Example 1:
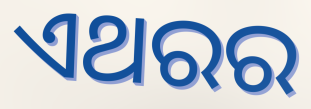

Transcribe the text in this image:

ଏଥରର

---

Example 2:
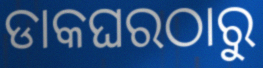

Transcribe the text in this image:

ଡାକଘରଠାରୁ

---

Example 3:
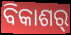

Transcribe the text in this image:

ବିକାଶର୍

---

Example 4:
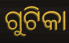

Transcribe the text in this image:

ଗୁଟିକା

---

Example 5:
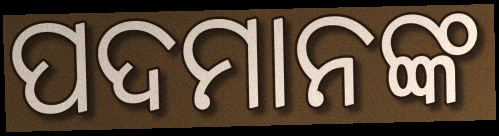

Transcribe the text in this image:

ପଦମାନଙ୍କ